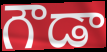
గౌడా